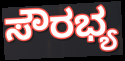
ಸೌರಭ್ಯ